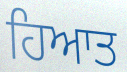
ਹਿਆਤ